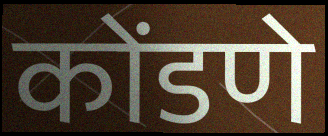
कोंडणे